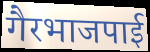
गैरभाजपाई